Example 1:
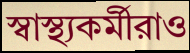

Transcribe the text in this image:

স্বাস্থ্যকর্মীরাও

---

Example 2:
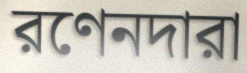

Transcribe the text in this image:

রণেনদারা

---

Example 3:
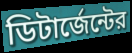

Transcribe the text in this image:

ডিটার্জেন্টের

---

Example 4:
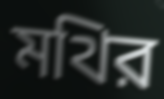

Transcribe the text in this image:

মথির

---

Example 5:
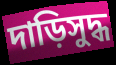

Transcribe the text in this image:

দাড়িসুদ্ধ